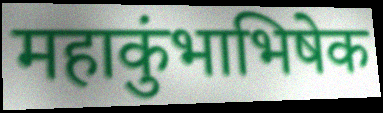
महाकुंभाभिषेक